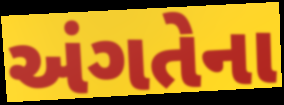
અંગતેના